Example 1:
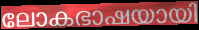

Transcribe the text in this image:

ലോകഭാഷയായി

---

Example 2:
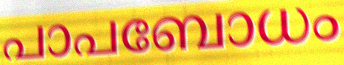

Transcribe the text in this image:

പാപബോധം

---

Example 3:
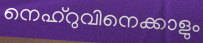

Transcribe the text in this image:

നെഹ്റുവിനെക്കാളും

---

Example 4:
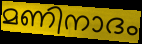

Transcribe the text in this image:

മണിനാദം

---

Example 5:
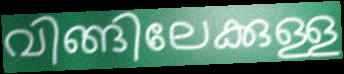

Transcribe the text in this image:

വിങ്ങിലേക്കുള്ള